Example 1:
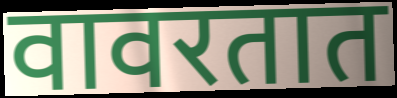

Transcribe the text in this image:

वावरतात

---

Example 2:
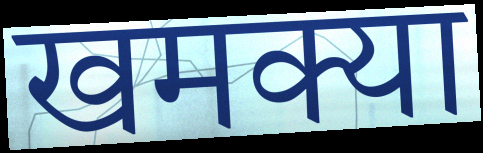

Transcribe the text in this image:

खमक्या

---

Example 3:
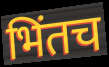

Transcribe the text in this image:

भिंतच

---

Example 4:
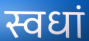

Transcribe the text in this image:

स्वधां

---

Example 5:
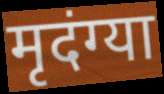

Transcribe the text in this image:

मृदंग्या